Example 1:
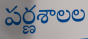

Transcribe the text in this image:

పర్ణశాలల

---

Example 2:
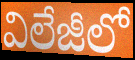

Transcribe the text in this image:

విలేజీలో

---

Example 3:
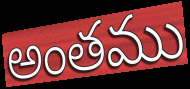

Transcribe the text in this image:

అంతము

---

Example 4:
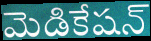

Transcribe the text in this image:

మెడికేషన్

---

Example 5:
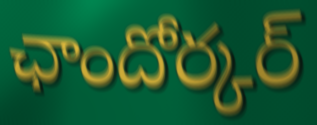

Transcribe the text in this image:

ఛాందోర్కర్